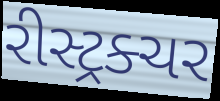
રીસ્ટ્રક્ચર